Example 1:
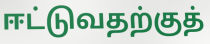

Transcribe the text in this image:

ஈட்டுவதற்குத்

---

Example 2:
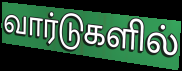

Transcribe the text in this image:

வார்டுகளில்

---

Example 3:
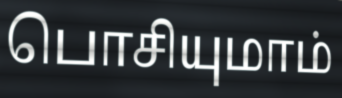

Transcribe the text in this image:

பொசியுமாம்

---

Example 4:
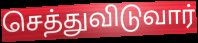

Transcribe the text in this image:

செத்துவிடுவார்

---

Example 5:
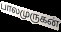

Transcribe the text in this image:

பாலமுருகன்